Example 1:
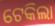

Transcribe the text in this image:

ଟେକିଲା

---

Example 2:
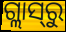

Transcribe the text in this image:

ଗ୍ଲାସ୍‍ରୁ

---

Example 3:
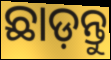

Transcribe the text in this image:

ଛାଡ଼ନ୍ତୁ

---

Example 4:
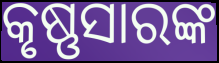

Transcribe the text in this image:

କୃଷ୍ଣସାରଙ୍କ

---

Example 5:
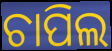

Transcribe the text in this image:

ଚାପିଲ